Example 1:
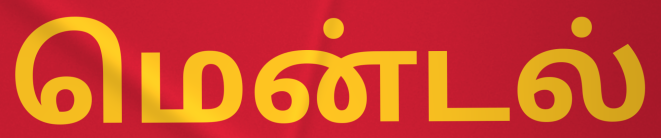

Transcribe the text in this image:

மென்டல்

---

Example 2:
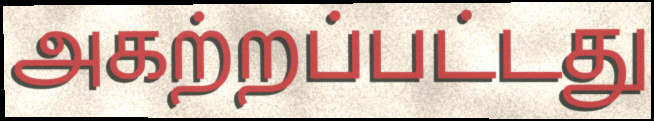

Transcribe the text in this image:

அகற்றப்பட்டது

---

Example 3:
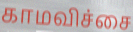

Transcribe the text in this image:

காமவிச்சை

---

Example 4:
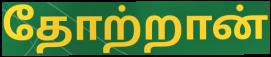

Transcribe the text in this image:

தோற்றான்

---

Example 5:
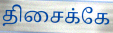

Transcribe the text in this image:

திசைக்கே